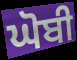
ਘੋਬੀ